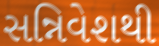
સન્નિવેશથી